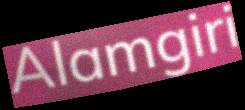
Alamgiri